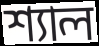
শ্যাল